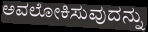
ಅವಲೋಕಿಸುವುದನ್ನು